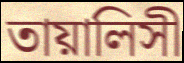
তায়ালিসী